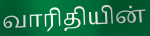
வாரிதியின்